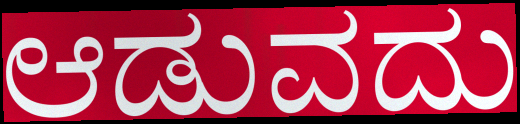
ಆಡುವದು